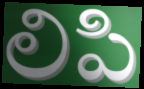
లిపి